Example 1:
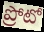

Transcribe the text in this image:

ప్రోటో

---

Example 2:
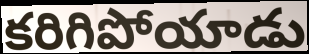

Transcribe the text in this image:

కరిగిపోయాడు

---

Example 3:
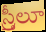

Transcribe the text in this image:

స్ర్తీలూ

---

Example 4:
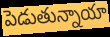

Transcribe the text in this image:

పెడుతున్నాయా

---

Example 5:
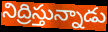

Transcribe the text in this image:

నిద్రిస్తున్నాడు